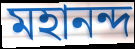
মহানন্দ